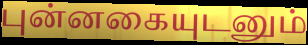
புன்னகையுடனும்